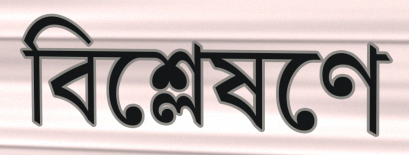
বিশ্লেষণে